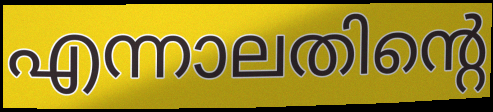
എന്നാലതിന്റെ